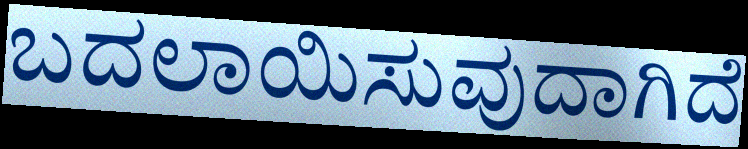
ಬದಲಾಯಿಸುವುದಾಗಿದೆ